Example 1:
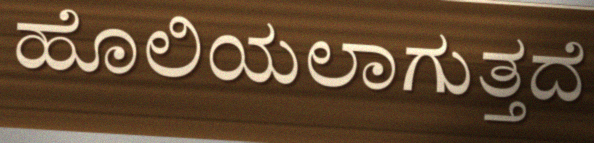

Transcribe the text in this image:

ಹೊಲಿಯಲಾಗುತ್ತದೆ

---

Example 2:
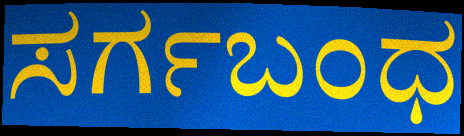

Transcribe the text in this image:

ಸರ್ಗಬಂಧ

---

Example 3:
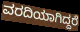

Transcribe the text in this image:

ವರದಿಯಾಗಿದ್ದರೆ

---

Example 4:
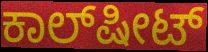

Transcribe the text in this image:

ಕಾಲ್‌ಷೀಟ್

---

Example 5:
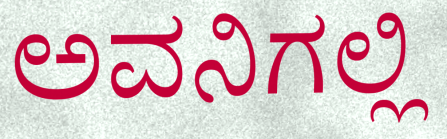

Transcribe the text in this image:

ಅವನಿಗಲ್ಲಿ